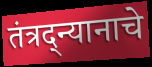
तंत्रद्न्यानाचे